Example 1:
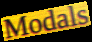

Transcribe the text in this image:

Modals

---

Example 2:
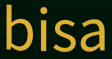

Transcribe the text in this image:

bisa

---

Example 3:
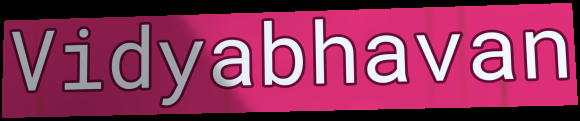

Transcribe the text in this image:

Vidyabhavan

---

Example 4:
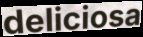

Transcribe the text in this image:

deliciosa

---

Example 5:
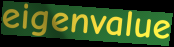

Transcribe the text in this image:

eigenvalue